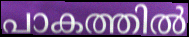
പാകത്തിൽ